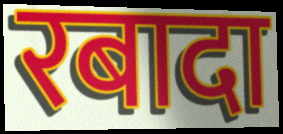
रबादा